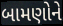
બામણોને